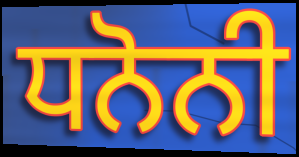
ਧਨੋਨੀ